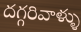
దగ్గరివాళ్ళు